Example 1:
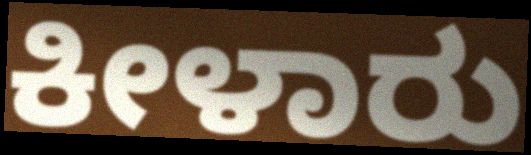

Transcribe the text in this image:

ಕೀಳಾರು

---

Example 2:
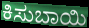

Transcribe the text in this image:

ಕಿಸುಬಾಯಿ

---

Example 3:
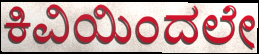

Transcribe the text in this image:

ಕಿವಿಯಿಂದಲೇ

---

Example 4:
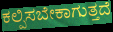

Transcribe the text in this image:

ಕಲ್ಪಿಸಬೇಕಾಗುತ್ತದೆ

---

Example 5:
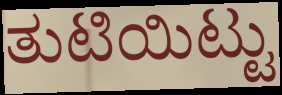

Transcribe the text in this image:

ತುಟಿಯಿಟ್ಟು